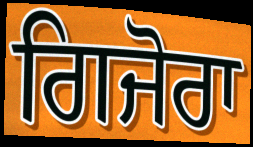
ਗਿਜੋਰਾ